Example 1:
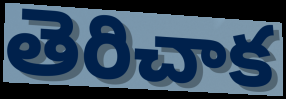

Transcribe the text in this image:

తెరిచాక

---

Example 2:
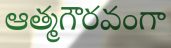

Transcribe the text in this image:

ఆత్మగౌరవంగా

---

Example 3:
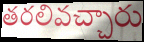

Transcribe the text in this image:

తరలివచ్చారు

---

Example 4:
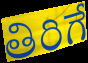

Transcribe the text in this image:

తిరిగే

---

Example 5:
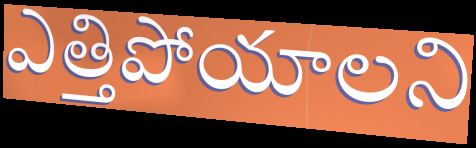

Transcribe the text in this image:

ఎత్తిపోయాలని